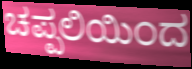
ಚಪ್ಪಲಿಯಿಂದ